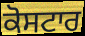
ਕੋਸਟਾਰ